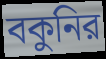
বকুনির